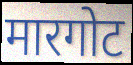
मारगोट